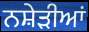
ਨਸ਼ੇੜੀਆਂ